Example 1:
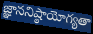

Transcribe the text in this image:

జ్ఞాననిష్ఠాయోగ్యతా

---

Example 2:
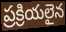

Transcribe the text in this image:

ప్రక్రియలైన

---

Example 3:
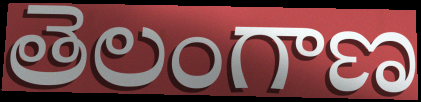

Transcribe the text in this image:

తెలంగాణ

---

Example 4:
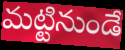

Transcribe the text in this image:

మట్టినుండే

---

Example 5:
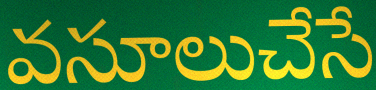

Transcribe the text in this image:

వసూలుచేసే